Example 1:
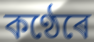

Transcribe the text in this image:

কণ্ঠেৰে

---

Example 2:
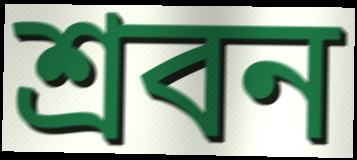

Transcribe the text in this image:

শ্ৰবন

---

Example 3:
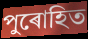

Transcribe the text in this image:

পুৰোহিত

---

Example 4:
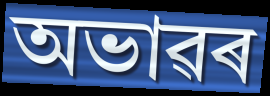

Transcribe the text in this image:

অভাৱৰ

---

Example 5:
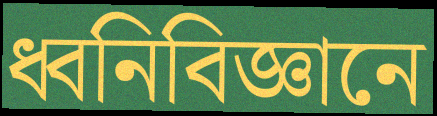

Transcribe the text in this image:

ধ্বনিবিজ্ঞানে